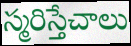
స్మరిస్తేచాలు